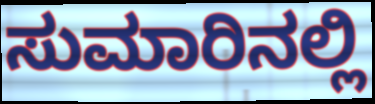
ಸುಮಾರಿನಲ್ಲಿ